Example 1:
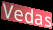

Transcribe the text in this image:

Vedas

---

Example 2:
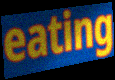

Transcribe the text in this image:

eating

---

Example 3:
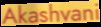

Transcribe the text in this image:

Akashvani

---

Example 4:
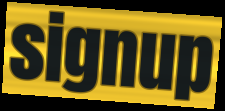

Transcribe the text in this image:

signup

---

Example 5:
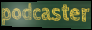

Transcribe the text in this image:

podcaster